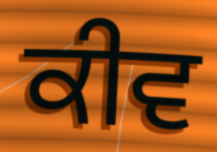
ਕੀਵ